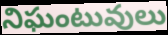
నిఘంటువులు